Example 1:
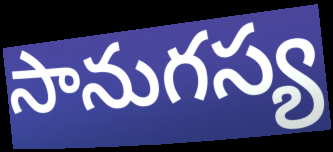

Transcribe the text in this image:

సానుగస్య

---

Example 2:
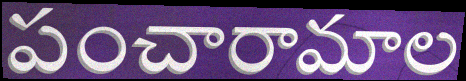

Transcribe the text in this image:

పంచారామాల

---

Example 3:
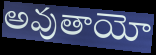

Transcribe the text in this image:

అవుతాయో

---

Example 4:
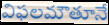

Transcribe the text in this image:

విఫలమౌతూనే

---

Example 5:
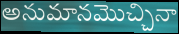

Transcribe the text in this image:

అనుమానమొచ్చినా